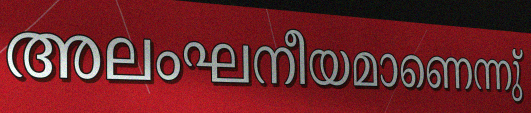
അലംഘനീയമാണെന്നു്